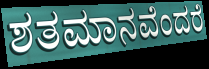
ಶತಮಾನವೆಂದರೆ